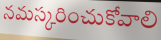
నమస్కరించుకోవాలి